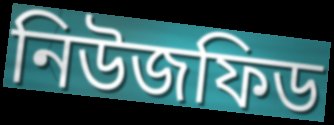
নিউজফিড